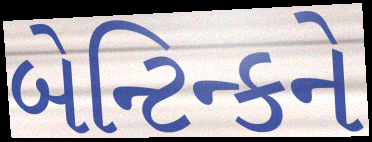
બેન્ટિન્કને